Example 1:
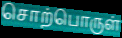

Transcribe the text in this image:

சொற்பொருள்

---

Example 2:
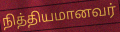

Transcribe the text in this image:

நித்தியமானவர்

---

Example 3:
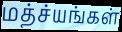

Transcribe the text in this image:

மத்ச்யங்கள்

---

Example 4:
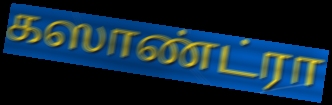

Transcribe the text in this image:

கஸாண்ட்ரா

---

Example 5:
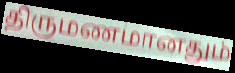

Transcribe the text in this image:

திருமணமானதும்